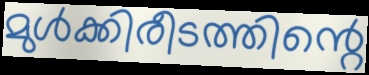
മുൾക്കിരീടത്തിന്റെ